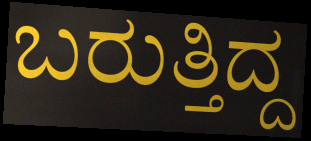
ಬರುತ್ತಿದ್ದ